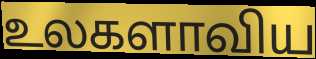
உலகளாவிய